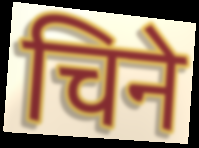
चिने